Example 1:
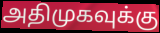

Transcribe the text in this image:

அதிமுகவுக்கு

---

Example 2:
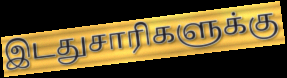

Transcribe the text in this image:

இடதுசாரிகளுக்கு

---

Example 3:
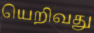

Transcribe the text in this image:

யெறிவது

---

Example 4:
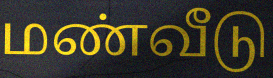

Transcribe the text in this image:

மண்வீடு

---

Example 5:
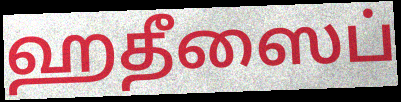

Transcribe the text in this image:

ஹதீஸைப்